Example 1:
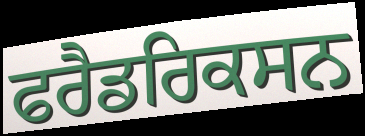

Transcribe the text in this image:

ਫਰੈਡਰਿਕਸਨ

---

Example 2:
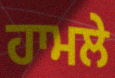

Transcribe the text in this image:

ਹਾਮਲੇ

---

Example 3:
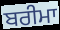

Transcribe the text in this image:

ਬਰੀਮਾ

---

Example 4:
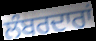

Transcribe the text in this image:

ਲੰਬਰਦਾਰਾਂ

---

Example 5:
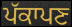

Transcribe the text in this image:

ਪੱਕਾਪਣ